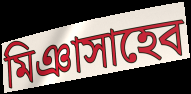
মিঞাসাহেব